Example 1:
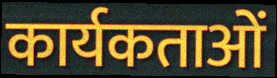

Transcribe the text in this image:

कार्यकताओं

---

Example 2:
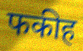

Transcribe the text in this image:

फकीह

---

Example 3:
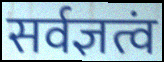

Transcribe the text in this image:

सर्वज्ञत्वं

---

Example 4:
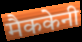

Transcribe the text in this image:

मैककेनी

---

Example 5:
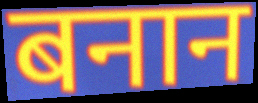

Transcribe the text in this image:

बनान